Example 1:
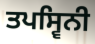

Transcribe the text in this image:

ਤਪਸ੍ਵਿਨੀ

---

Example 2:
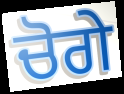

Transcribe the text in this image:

ਚੋਗੇ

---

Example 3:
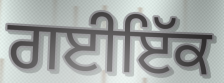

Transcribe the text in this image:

ਗਈਇੱਕ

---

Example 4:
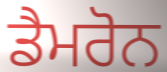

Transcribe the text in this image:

ਡੈਮਰੋਨ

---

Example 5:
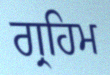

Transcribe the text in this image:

ਗ੍ਰਹਿਮ